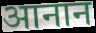
आनान